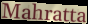
Mahratta